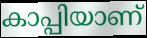
കാപ്പിയാണ്